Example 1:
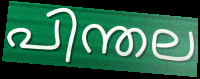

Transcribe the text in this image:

പിന്തല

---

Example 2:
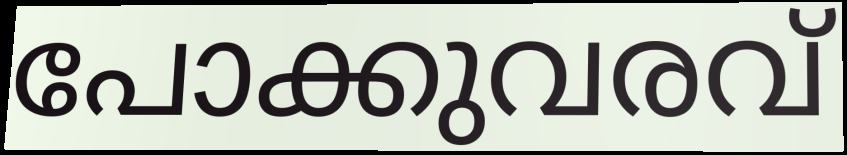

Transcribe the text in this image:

പോക്കുവരവ്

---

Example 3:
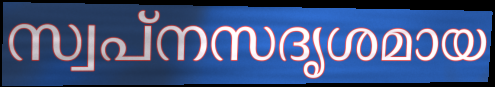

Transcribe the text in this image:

സ്വപ്നസദൃശമായ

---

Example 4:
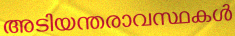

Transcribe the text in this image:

അടിയന്തരാവസ്ഥകൾ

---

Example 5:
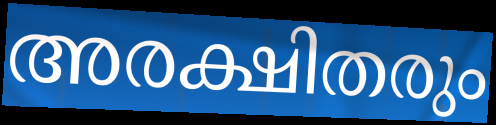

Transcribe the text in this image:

അരക്ഷിതരും